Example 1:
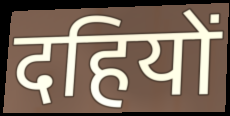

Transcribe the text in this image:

दहियों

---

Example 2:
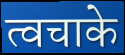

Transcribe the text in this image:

त्वचाके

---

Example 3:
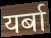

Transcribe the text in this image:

यर्बा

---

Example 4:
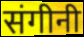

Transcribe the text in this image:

संगीनी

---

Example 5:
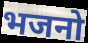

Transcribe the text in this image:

भजनो